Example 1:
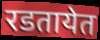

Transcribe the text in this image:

रडतायेत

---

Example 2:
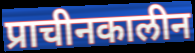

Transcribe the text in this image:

प्राचीनकालीन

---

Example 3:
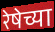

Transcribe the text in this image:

रेषेच्या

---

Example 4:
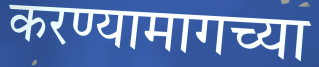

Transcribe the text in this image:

करण्यामागच्या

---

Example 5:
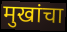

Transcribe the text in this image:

मुखांचा